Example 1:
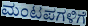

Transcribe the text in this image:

ಮಂಟಪಗಳಿಗೆ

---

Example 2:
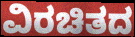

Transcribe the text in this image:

ವಿರಚಿತದ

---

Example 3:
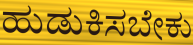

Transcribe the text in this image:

ಹುಡುಕಿಸಬೇಕು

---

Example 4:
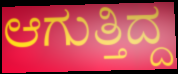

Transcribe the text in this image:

ಆಗುತ್ತಿದ್ದ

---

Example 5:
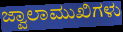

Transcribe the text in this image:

ಜ್ವಾಲಾಮುಖಿಗಳು